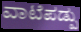
ವಾಟೆಪಡ್ಪು